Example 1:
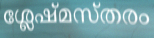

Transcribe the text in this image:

ശ്ലേഷ്മസ്തരം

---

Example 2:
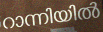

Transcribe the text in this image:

റാന്നിയിൽ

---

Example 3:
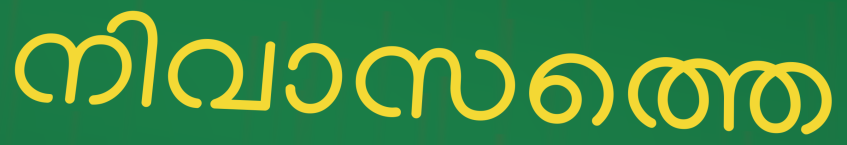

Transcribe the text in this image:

നിവാസത്തെ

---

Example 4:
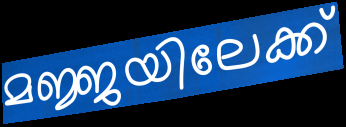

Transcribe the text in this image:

മജ്ജയിലേക്ക്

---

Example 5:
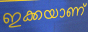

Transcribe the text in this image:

ഇക്കയാണ്